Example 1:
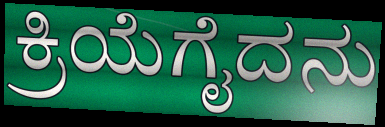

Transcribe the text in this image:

ಕ್ರಿಯೆಗೈದನು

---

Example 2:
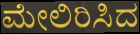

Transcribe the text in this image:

ಮೇಲಿರಿಸಿದ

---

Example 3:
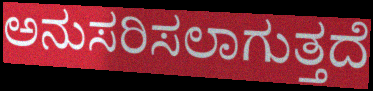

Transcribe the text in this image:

ಅನುಸರಿಸಲಾಗುತ್ತದೆ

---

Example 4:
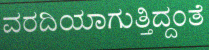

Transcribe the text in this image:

ವರದಿಯಾಗುತ್ತಿದ್ದಂತೆ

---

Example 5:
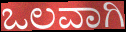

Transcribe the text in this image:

ಒಲವಾಗಿ